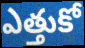
ఎత్తుకో